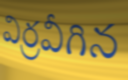
విర్రవీగిన